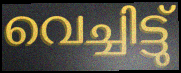
വെച്ചിട്ടു്